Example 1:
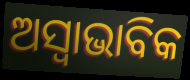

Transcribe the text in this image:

ଅସ୍ଵାଭାବିକ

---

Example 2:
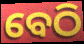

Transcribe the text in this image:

ବେଠି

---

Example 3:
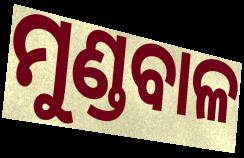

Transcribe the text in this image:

ମୁଣ୍ଡବାଳ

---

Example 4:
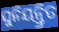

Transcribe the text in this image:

ସୁନିୟନ୍ତ୍ରିତ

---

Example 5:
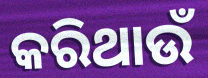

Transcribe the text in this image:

କରିଥାଉଁ